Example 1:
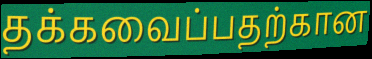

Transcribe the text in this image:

தக்கவைப்பதற்கான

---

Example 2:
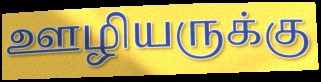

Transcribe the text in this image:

ஊழியருக்கு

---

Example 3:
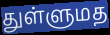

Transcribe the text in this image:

துள்ளுமத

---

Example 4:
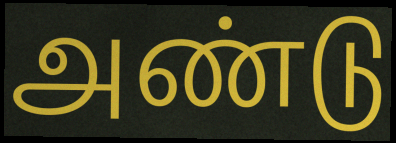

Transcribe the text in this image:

அண்டு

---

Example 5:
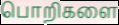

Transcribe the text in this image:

பொறிகளை